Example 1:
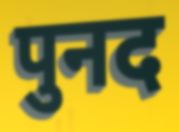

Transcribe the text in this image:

पुनद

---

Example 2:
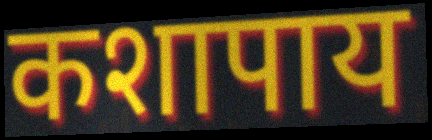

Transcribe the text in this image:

कशापाय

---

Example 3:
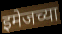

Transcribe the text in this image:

इमेजच्या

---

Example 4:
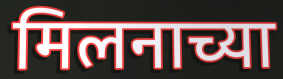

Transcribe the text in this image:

मिलनाच्या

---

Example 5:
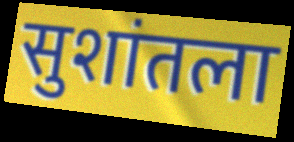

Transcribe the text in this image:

सुशांतला